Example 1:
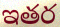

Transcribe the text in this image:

ఇతర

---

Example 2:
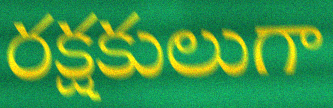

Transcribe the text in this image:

రక్షకులుగా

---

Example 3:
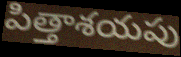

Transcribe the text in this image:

పిత్తాశయపు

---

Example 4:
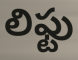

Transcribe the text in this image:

లిఫ్టు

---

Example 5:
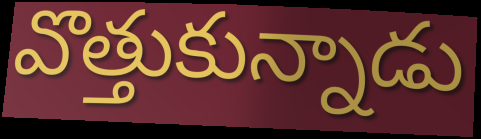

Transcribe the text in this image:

వొత్తుకున్నాడు